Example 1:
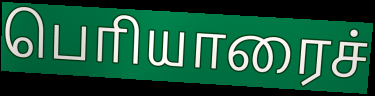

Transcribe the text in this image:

பெரியாரைச்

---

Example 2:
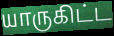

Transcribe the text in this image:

யாருகிட்ட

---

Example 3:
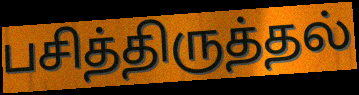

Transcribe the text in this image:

பசித்திருத்தல்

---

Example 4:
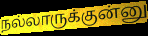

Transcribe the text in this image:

நல்லாருக்குன்னு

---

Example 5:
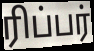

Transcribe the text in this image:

ரிப்பர்